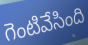
గెంటివేసింది